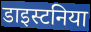
डाइस्टनिया